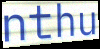
nthu